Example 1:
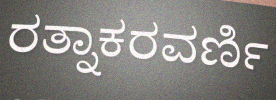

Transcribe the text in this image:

ರತ್ನಾಕರವರ್ಣಿ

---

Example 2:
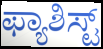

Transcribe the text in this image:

ಫ್ಯಾಶಿಸ್ಟ್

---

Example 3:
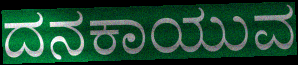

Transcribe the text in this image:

ದನಕಾಯುವ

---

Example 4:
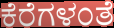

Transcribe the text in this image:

ಕೆರೆಗಳಂತೆ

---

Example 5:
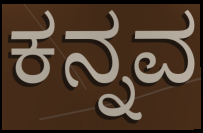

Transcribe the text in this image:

ಕನ್ನವ